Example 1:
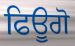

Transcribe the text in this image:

ਫਿਊਗੋ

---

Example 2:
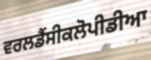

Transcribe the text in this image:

ਵਰਲਡੈਂਸੀਕਲੋਪੀਡੀਆ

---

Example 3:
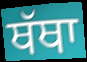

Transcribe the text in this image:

ਥੱਥਾ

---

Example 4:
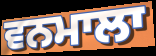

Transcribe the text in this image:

ਵਨਮਾਲਾ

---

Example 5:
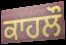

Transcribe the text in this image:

ਕਾਹਲੌ